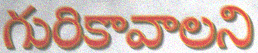
గురికావాలని